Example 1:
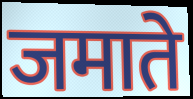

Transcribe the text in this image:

जमाते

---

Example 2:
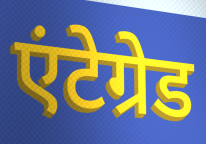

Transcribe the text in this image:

एंटेग्रेड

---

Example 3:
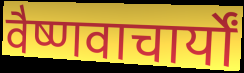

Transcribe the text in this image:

वैष्णवाचार्यों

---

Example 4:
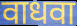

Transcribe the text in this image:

वाधवा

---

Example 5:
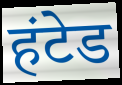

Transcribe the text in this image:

हंटेड